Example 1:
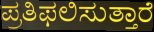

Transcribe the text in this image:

ಪ್ರತಿಫಲಿಸುತ್ತಾರೆ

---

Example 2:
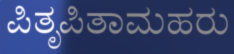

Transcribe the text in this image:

ಪಿತೃಪಿತಾಮಹರು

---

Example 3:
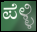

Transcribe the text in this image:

ಪೆಳ್ಳಿ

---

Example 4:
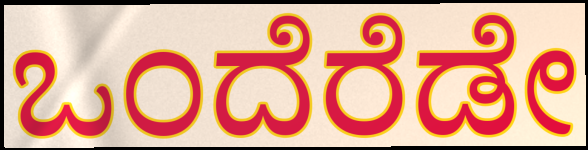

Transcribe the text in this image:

ಒಂದೆರೆಡೇ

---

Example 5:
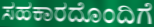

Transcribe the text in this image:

ಸಹಕಾರದೊಂದಿಗೆ